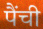
पैंची